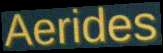
Aerides